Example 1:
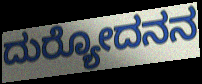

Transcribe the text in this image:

ದುರ್‍ಯೋದನನ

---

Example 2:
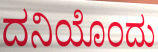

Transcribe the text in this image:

ದನಿಯೊಂದು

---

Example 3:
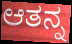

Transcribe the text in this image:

ಆತನ್ನ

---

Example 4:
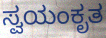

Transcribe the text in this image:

ಸ್ವಯಂಕೃತ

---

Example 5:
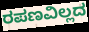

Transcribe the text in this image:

ರಪಣವಿಲ್ಲದ